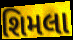
શિમલા